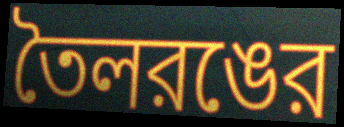
তৈলরঙের